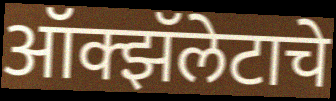
ऑक्झॅलेटाचे